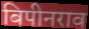
बिपीनराव